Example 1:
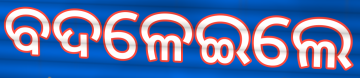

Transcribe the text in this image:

ବଦଳେଇଲେ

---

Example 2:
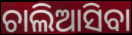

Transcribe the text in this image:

ଚାଲିଆସିବା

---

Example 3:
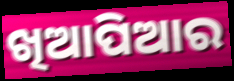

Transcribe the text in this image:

ଖିଆପିଆର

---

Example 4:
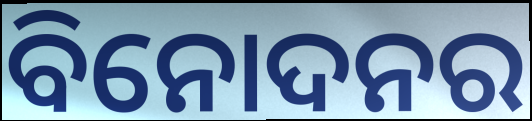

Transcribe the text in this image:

ବିନୋଦନର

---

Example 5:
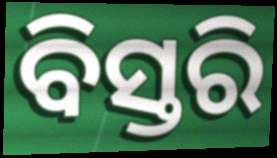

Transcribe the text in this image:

ବିସ୍ତରି